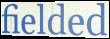
fielded